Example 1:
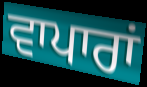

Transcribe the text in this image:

ਵਾਪਾਰਾਂ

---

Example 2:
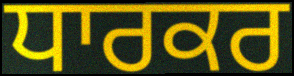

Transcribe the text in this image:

ਧਾਰਕਰ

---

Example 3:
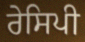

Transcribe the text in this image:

ਰੇਸਿਪੀ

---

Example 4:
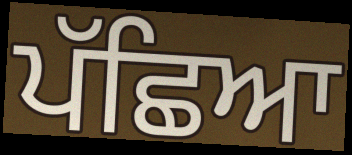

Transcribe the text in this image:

ਪੱਛਿਆ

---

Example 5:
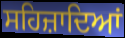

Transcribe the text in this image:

ਸਹਿਜ਼ਾਦਿਆਂ